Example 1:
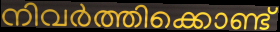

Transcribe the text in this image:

നിവർത്തിക്കൊണ്ട്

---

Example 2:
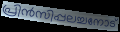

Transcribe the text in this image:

പ്രിൻസിപ്പലച്ചനോട്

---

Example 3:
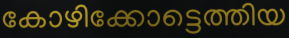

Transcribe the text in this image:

കോഴിക്കോട്ടെത്തിയ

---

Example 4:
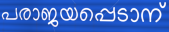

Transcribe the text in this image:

പരാജയപ്പെടാന്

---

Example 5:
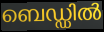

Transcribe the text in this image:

ബെഡ്ഡിൽ